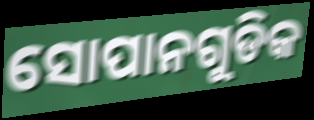
ସୋପାନଗୁଡିକ